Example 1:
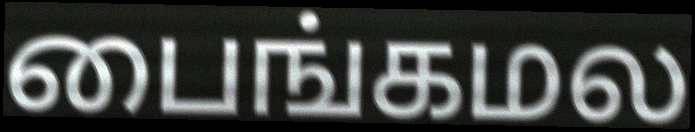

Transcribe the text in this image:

பைங்கமல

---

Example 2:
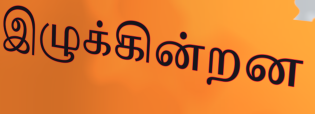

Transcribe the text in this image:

இழுக்கின்றன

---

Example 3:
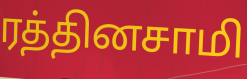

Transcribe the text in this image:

ரத்தினசாமி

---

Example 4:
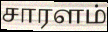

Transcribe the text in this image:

சாரளம்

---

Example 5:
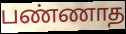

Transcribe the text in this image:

பண்ணாத